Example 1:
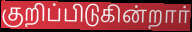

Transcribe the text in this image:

குறிப்பிடுகின்றார்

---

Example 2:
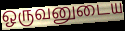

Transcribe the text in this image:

ஒருவனுடைய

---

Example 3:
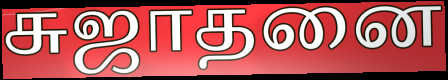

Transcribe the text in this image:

சுஜாதனை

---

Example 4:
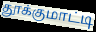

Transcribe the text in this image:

தூக்குமாட்டி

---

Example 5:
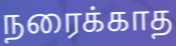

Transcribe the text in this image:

நரைக்காத